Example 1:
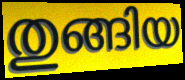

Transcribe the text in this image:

തുങ്ങിയ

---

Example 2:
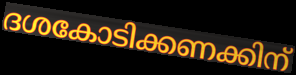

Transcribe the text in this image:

ദശകോടിക്കണക്കിന്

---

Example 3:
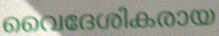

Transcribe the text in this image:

വൈദേശികരായ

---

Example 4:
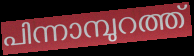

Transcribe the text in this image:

പിന്നാമ്പുറത്ത്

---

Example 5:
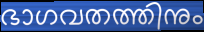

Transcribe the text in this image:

ഭാഗവതത്തിനും